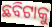
ଛବିଟାକୁ